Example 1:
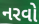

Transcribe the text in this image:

નરવો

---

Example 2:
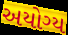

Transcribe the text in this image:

અયોગ્ય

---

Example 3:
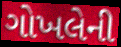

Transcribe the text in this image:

ગોખલેની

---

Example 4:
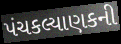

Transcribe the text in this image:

પંચકલ્યાણકની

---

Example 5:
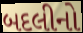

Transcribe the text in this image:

બદલીનો